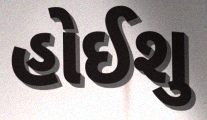
હોઈશુ